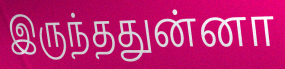
இருந்ததுன்னா